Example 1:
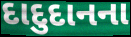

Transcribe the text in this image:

દાદુદાનના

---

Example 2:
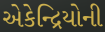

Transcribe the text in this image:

એકેન્દ્રિયોની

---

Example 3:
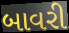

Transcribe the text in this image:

બાવરી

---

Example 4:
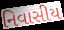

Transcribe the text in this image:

નિવાસીય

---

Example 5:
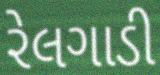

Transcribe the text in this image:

રેલગાડી